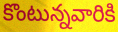
కొంటున్నవారికి